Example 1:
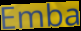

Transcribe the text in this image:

Emba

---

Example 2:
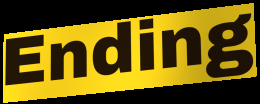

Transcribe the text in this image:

Ending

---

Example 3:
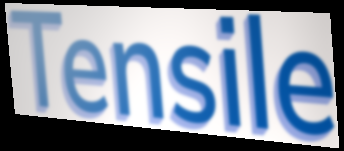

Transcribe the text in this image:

Tensile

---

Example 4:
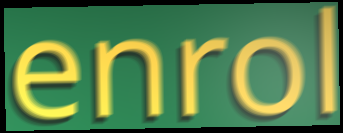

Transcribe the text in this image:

enrol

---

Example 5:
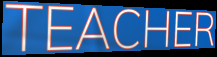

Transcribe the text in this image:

TEACHER